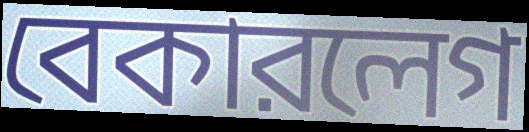
বেকারলেগ